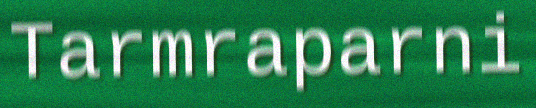
Tarmraparni